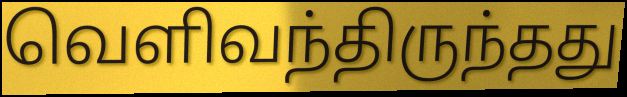
வெளிவந்திருந்தது